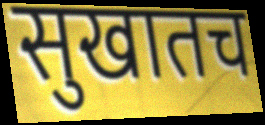
सुखातच